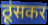
ठूंसकर